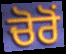
ਚੋਰੋਂ